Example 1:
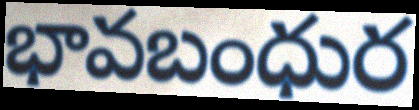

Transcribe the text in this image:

భావబంధుర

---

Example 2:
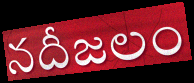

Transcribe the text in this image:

నదీజలం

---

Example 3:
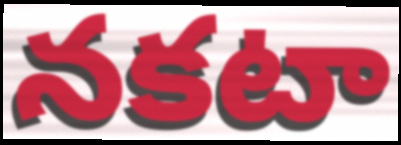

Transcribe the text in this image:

నకటా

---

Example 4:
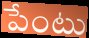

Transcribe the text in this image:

పేంటు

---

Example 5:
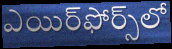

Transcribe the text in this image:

ఎయిర్‌ఫోర్స్‌లో